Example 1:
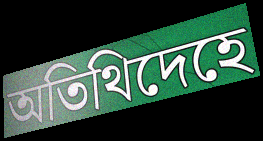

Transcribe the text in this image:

অতিথিদেহে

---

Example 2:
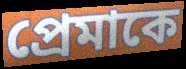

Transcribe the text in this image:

প্রেমাকে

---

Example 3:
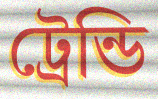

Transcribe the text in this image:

ট্রেন্ডি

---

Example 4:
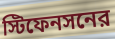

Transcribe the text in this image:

স্টিফেনসনের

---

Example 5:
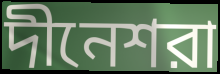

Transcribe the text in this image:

দীনেশরা